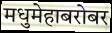
मधुमेहाबरोबर